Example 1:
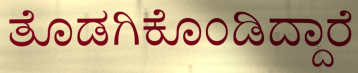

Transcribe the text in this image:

ತೊಡಗಿಕೊಂಡಿದ್ದಾರೆ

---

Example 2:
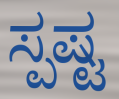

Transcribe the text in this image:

ಸ್ಪಷ್ಟ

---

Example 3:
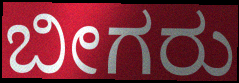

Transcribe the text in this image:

ಬೀಗರು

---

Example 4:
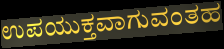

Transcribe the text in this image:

ಉಪಯುಕ್ತವಾಗುವಂತಹ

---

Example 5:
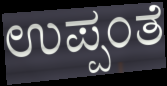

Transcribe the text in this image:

ಉಪ್ಪಂತೆ